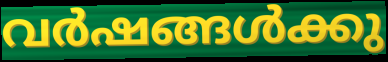
വർഷങ്ങൾക്കു